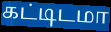
கட்டிடமா